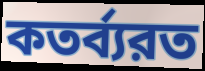
কতর্ব্যরত